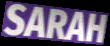
SARAH